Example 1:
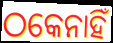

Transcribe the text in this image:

ଠକେନାହିଁ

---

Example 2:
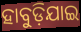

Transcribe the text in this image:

ହାବୁଡ଼ିଯାଇ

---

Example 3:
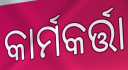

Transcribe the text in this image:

କାର୍ମକର୍ତ୍ତା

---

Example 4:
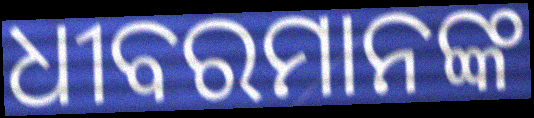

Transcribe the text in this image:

ଧୀବରମାନଙ୍କ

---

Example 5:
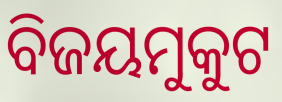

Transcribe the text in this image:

ବିଜୟମୁକୁଟ